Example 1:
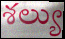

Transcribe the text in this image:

శల్యు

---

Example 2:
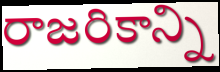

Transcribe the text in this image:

రాజరికాన్ని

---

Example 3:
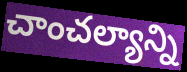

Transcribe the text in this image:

చాంచల్యాన్ని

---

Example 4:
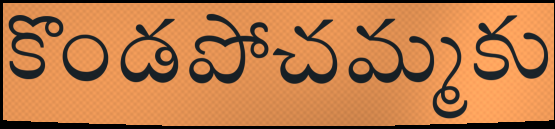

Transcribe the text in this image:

కొండపోచమ్మకు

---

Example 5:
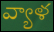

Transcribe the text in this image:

వ్యాళ